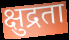
क्षुद्रता